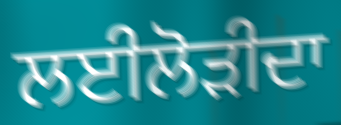
ਲਈਲੋੜੀਦਾ